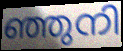
ഞ്ഞുനി